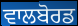
ਵਾਲਬੋਰਡ